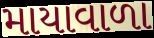
માયાવાળા